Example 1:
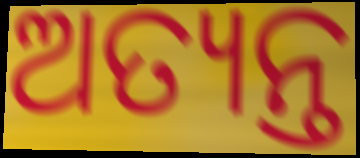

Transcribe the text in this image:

ଅତ୍ୟନ୍ତ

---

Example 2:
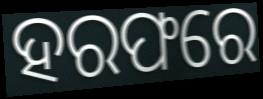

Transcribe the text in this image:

ହରଫରେ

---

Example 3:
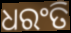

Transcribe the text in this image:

ଧରଂତି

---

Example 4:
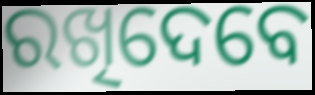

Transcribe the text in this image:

ରଖିଦେବେ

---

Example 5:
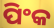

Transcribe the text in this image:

ପିଂକ